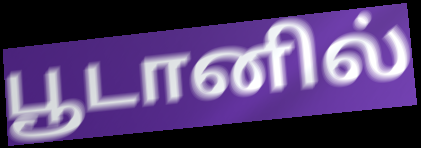
பூடானில்